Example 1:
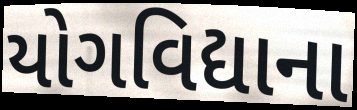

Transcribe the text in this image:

યોગવિદ્યાના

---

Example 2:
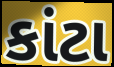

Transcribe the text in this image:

કાંટા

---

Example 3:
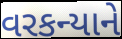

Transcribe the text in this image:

વરકન્યાને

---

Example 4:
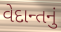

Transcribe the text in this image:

વેદાન્તનું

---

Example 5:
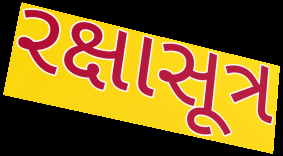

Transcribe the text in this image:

રક્ષાસૂત્ર